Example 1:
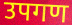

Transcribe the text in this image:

उपगण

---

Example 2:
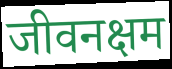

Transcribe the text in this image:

जीवनक्षम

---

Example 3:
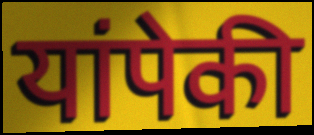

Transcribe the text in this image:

यांपेकी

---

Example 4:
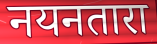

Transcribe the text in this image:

नयनतारा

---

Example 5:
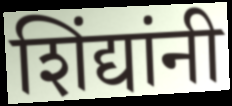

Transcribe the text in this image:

शिंद्यांनी